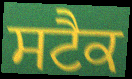
ਸਟੈਕ